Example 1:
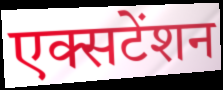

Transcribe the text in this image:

एक्सटेंशन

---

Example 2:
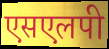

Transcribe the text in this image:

एसएलपी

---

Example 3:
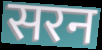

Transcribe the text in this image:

सरन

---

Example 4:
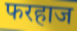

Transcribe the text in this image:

फरहाज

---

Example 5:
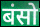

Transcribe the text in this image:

बंसो